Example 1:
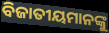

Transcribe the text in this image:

ବିଜାତୀୟମାନଙ୍କୁ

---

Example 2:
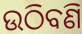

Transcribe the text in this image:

ଉଠିବଣି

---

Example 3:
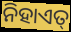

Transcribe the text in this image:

ନିହାଏତ୍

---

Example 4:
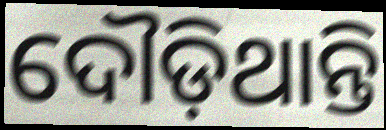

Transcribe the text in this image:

ଦୌଡ଼ିଥାନ୍ତି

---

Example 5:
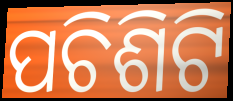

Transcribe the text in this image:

ପଚିଶିଟି